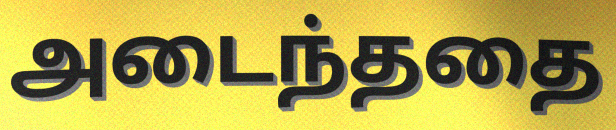
அடைந்ததை